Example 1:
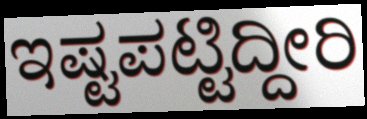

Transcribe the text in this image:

ಇಷ್ಟಪಟ್ಟಿದ್ದೀರಿ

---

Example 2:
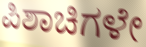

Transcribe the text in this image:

ಪಿಶಾಚಿಗಳೇ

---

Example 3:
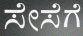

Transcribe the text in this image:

ಸೇಸೆಗೆ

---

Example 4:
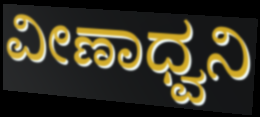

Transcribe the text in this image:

ವೀಣಾಧ್ವನಿ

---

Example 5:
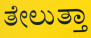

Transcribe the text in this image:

ತೇಲುತ್ತಾ